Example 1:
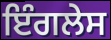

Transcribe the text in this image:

ਇੰਗਲੇਸ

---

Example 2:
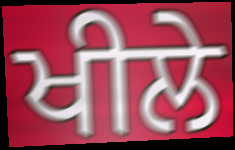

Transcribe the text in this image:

ਖੀਲੇ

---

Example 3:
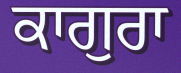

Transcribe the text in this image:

ਕਾਗੁਰਾ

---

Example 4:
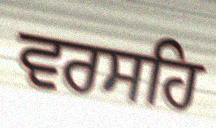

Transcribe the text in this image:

ਵਰਸਹਿ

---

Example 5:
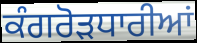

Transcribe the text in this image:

ਕੰਗਰੋੜਧਾਰੀਆਂ